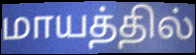
மாயத்தில்